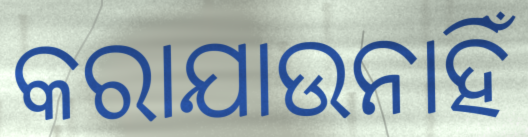
କରାଯାଉନାହିଁ